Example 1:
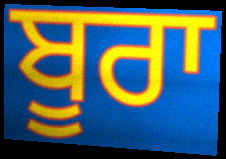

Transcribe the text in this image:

ਬੂਰਾ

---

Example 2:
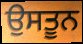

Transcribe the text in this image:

ਉਸਤੂਨ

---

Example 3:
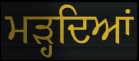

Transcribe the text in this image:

ਮੜ੍ਹਦਿਆਂ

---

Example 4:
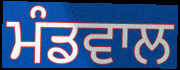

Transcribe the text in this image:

ਮੰਡਵਾਲ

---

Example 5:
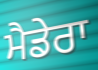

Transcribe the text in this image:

ਮੈਡੇਰਾ